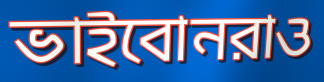
ভাইবোনরাও